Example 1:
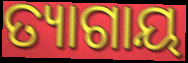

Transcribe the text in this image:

ତ୍ୟାଗାୟ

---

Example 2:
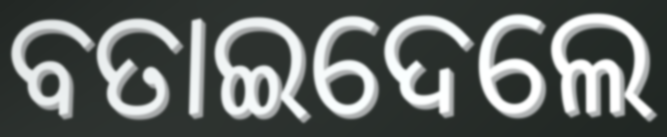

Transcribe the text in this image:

ବତାଇଦେଲେ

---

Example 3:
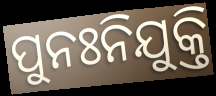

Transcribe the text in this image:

ପୁନଃନିଯୁକ୍ତି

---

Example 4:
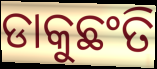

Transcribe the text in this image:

ଡାକୁଛଂତି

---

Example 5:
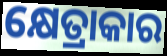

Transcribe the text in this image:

କ୍ଷେତ୍ରାକାର